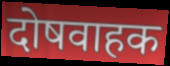
दोषवाहक